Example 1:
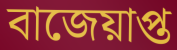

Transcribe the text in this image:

বাজেয়াপ্ত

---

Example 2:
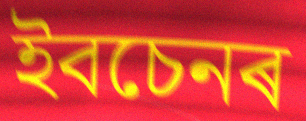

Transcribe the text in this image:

ইবচেনৰ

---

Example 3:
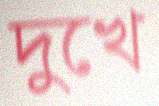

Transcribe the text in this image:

দুখে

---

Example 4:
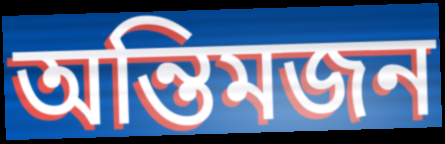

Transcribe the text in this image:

অন্তিমজন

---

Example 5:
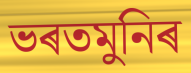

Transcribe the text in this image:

ভৰতমুনিৰ